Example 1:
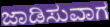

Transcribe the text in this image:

ಜಾಡಿಸುವಾಗ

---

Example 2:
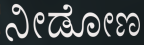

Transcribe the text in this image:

ನೀಡೋಣ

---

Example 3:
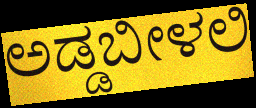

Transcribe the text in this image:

ಅಡ್ಡಬೀಳಲಿ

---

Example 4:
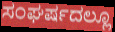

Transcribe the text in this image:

ಸಂಘರ್ಷದಲ್ಲೂ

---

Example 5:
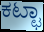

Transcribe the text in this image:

ಕಟ್ಟಾ